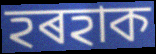
হৰহাক